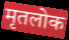
मृतलोक